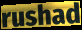
rushad